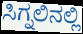
ಸಿಗ್ನಲಿನಲ್ಲಿ